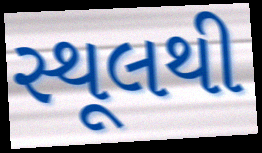
સ્થૂલથી